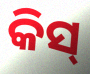
କିସ୍